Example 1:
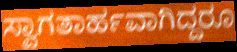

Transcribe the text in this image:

ಸ್ವಾಗತಾರ್ಹವಾಗಿದ್ದರೂ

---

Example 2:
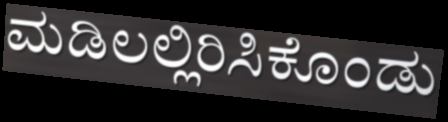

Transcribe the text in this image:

ಮಡಿಲಲ್ಲಿರಿಸಿಕೊಂಡು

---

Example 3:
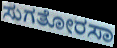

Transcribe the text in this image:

ಸುಗತೋರಸಾ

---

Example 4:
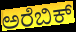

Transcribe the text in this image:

ಅರೆಬಿಕ್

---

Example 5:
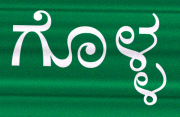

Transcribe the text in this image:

ಗೊಳ್ಳ